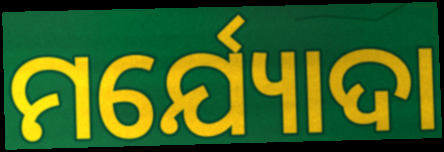
ମର୍ଯ୍ୟୋଦା